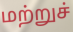
மற்றுச்